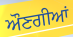
ਔਣਗੀਆਂ